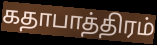
கதாபாத்திரம்